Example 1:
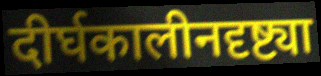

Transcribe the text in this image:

दीर्घकालीनदृष्ट्या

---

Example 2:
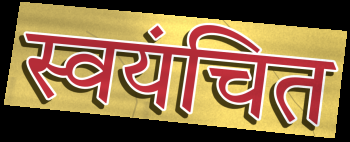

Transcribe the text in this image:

स्वयंचित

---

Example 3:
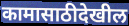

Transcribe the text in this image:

कामासाठीदेखील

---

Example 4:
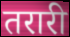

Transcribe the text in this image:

तरारी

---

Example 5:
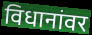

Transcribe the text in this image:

विधानांवर